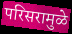
परिसरामुळे